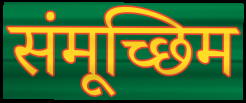
संमूच्छिम